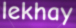
lekhay